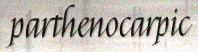
parthenocarpic